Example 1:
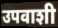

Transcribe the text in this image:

उपवाशी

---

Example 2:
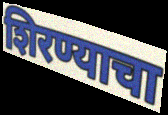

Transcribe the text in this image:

शिरण्याचा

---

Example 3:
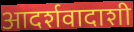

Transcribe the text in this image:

आदर्शवादाशी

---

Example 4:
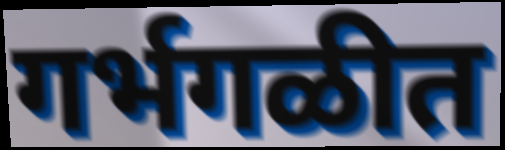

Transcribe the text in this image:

गर्भगळीत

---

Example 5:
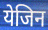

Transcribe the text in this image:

येजिन